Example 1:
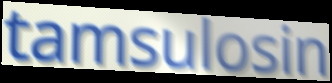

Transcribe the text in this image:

tamsulosin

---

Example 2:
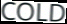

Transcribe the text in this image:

COLD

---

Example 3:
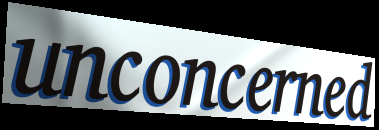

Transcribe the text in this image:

unconcerned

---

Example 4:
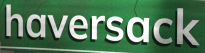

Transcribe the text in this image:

haversack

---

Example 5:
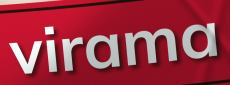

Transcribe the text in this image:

virama